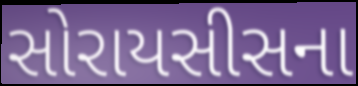
સોરાયસીસના